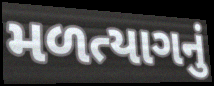
મળત્યાગનું